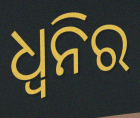
ଧ୍ବନିର